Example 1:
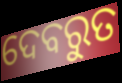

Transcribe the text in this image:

ଦେବରୁତ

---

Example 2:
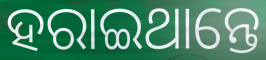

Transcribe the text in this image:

ହରାଇଥାନ୍ତେ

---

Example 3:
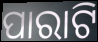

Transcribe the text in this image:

ପାରାଟି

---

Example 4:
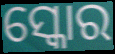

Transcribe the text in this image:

ସ୍କୋର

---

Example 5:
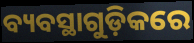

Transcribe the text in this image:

ବ୍ୟବସ୍ଥାଗୁଡ଼ିକରେ